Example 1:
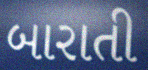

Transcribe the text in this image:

બારાતી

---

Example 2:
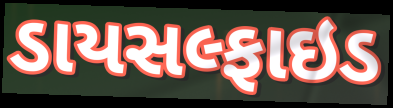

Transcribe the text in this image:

ડાયસલ્ફાઇડ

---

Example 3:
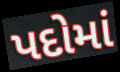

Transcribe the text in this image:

પદોમાં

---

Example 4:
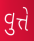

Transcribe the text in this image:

વુત્તે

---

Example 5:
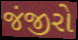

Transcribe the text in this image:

જંજીરો